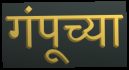
गंपूच्या